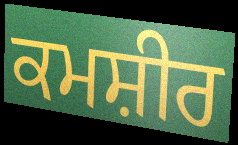
ਕਮਸ਼ੀਰ